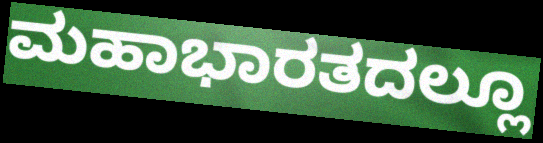
ಮಹಾಭಾರತದಲ್ಲೂ